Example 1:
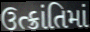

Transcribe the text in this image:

ઉત્ક્રાંતિમાં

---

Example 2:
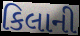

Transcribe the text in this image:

કિલાની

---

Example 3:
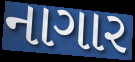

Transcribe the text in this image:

નાગાર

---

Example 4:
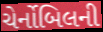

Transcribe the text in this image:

ચેર્નોબિલની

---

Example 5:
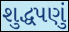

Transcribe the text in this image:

શુદ્ધપણું